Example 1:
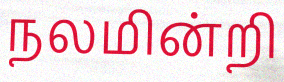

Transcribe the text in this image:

நலமின்றி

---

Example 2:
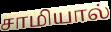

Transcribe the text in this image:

சாமியால்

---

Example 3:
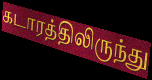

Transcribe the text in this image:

கடாரத்திலிருந்து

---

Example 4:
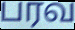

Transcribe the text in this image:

பரவ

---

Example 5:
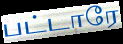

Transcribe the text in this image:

பட்டாரே